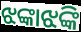
ଝଙ୍କାଝଙ୍କି